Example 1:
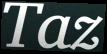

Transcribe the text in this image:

Taz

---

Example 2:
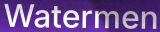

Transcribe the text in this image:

Watermen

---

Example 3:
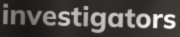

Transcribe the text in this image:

investigators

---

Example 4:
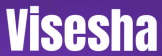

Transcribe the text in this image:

Visesha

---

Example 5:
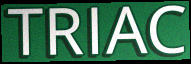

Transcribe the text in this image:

TRIAC